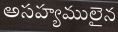
అసహ్యములైన